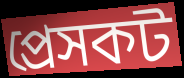
প্রেসকট